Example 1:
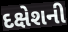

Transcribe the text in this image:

દક્ષેશની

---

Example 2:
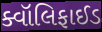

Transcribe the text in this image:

ક્વૉલિફાઈડ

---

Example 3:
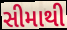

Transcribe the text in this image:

સીમાથી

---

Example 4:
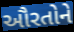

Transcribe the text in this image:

ઔરતોને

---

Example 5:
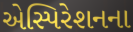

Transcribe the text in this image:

એસ્પિરેશનના